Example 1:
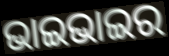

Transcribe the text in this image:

ଭାଇଭାଇର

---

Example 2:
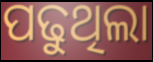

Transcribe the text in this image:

ପଢୁଥିଲା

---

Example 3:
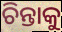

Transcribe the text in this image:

ଚିନ୍ତାକୁ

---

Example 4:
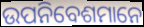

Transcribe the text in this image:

ଉପନିବେଶମାନେ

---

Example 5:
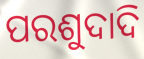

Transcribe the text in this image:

ପରଶୁଦାଦି